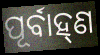
ପୂର୍ବାହ୍‌ଣ